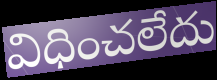
విధించలేదు